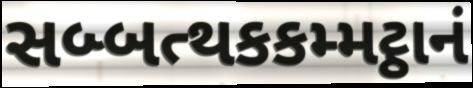
સબ્બત્થકકમ્મટ્ઠાનં